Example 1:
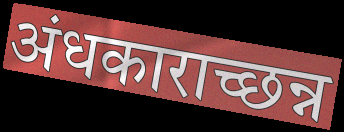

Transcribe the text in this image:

अंधकाराच्छन्न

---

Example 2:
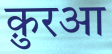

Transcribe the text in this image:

क़ुरआ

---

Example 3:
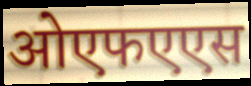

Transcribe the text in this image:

ओएफएएस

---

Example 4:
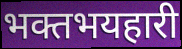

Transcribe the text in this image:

भक्तभयहारी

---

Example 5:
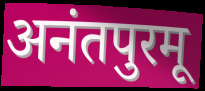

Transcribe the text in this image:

अनंतपुरमू